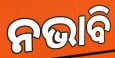
ନଭାବି